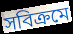
সবিক্রমে